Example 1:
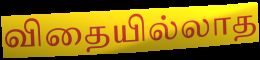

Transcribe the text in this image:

விதையில்லாத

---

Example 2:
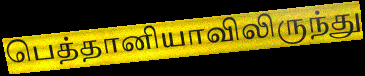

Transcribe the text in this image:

பெத்தானியாவிலிருந்து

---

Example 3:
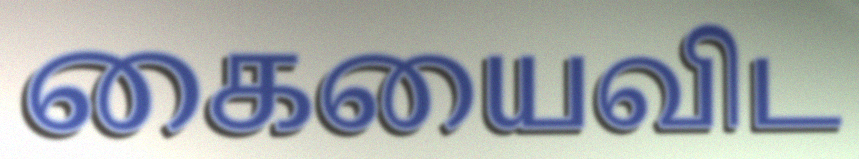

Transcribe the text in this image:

கையைவிட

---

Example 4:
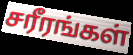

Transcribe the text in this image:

சரீரங்கள்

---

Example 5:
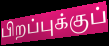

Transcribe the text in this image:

பிறப்புக்குப்